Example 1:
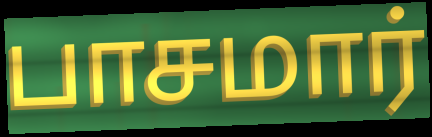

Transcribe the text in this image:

பாசமார்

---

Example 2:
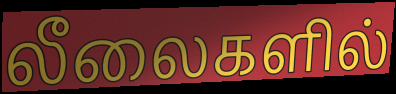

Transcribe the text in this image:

லீலைகளில்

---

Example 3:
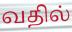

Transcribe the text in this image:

வதில்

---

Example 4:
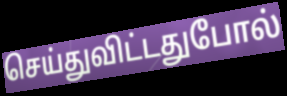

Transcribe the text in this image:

செய்துவிட்டதுபோல்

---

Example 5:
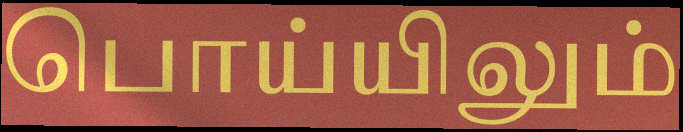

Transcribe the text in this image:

பொய்யிலும்